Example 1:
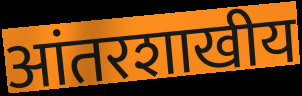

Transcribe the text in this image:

आंतरशाखीय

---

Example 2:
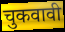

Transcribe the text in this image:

चुकवावी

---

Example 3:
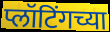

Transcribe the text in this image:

प्लॉटिंगच्या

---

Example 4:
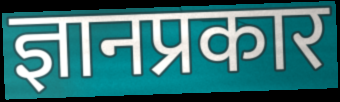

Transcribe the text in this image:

ज्ञानप्रकार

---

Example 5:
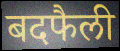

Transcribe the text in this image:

बदफैली